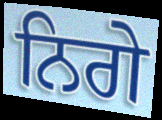
ਨਿਗੇ